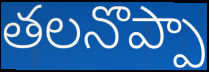
తలనొప్పా